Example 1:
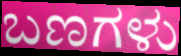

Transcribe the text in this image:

ಬಣಗಳು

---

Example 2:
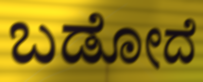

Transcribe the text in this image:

ಬಡೋದೆ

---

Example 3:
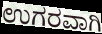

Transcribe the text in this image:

ಉಗರವಾಗಿ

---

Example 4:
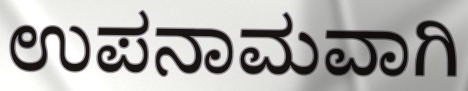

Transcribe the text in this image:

ಉಪನಾಮವಾಗಿ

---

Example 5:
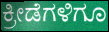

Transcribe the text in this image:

ಕ್ರೀಡೆಗಳಿಗೂ